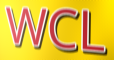
WCL